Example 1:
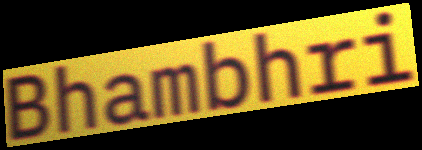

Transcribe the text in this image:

Bhambhri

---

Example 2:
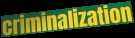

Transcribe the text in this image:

criminalization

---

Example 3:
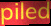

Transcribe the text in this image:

piled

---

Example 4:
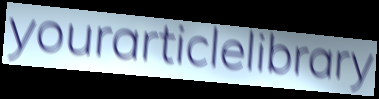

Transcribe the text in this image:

yourarticlelibrary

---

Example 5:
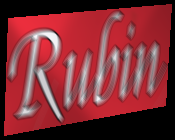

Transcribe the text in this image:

Rubin